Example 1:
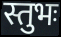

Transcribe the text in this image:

स्तुभः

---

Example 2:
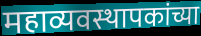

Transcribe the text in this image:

महाव्यवस्थापकांच्या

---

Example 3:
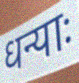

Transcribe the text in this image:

धन्याः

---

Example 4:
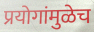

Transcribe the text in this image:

प्रयोगांमुळेच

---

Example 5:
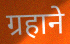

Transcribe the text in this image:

ग्रहाने